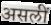
असलीं